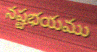
నష్టభయము